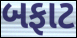
બફાટ